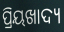
ପ୍ରିୟଖାଦ୍ୟ